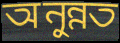
অনুন্নত